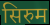
सिरुम